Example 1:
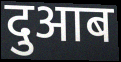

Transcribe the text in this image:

दुआब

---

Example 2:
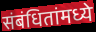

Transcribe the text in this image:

संबंधितांमध्ये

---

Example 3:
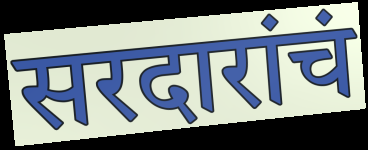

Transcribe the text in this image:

सरदारांचं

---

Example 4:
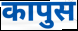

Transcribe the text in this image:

कापुस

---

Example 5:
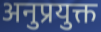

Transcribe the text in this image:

अनुप्रयुक्त